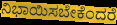
ನಿಭಾಯಿಸಬೇಕೆಂದರೆ